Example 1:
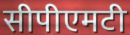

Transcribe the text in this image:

सीपीएमटी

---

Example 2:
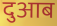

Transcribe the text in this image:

दुआब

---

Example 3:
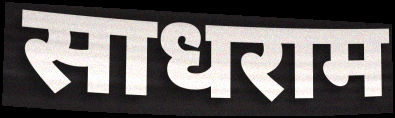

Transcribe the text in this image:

साधराम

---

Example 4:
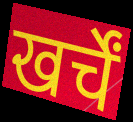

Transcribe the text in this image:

खर्चें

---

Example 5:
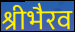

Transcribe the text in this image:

श्रीभैरव